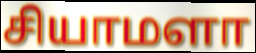
சியாமளா